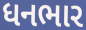
ધનભાર